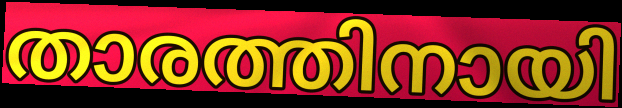
താരത്തിനായി